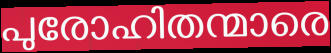
പുരോഹിതന്മാരെ